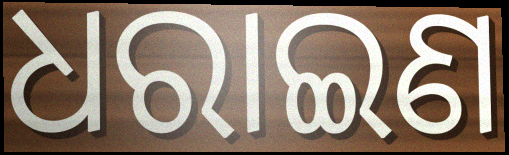
ଧରାଇଣ